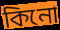
কিনো